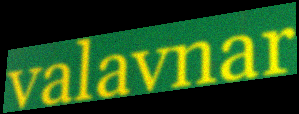
valavnar